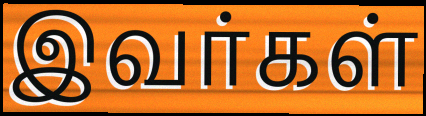
இவர்கள்